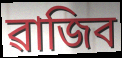
ৱাজিব